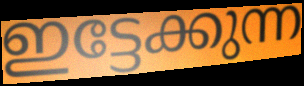
ഇട്ടേക്കുന്ന